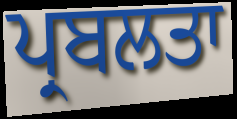
ਪ੍ਰਬਲਤਾ